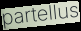
partellus